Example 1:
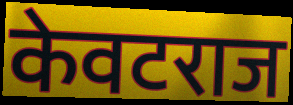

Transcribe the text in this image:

केवटराज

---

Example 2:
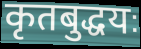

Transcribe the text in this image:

कृतबुद्धयः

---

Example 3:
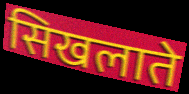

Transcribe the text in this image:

सिखलाते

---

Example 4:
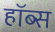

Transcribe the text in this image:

हॉब्स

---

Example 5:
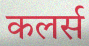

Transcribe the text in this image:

कलर्स